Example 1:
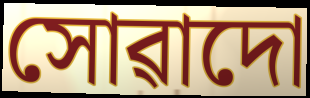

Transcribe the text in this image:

সোৱাদো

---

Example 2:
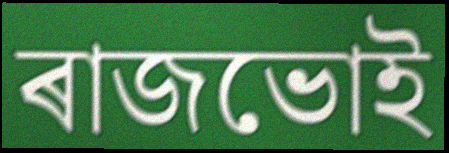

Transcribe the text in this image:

ৰাজভোই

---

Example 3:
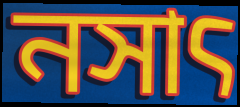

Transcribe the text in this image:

নসাৎ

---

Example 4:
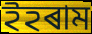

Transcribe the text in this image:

ইহৰাম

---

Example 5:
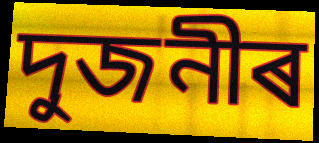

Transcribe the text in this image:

দুজনীৰ